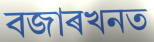
বজাৰখনত